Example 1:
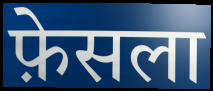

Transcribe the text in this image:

फ़ेसला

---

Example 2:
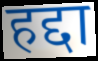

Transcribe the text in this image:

हद्दा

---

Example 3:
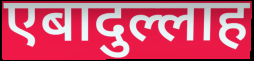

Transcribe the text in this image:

एबादुल्लाह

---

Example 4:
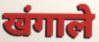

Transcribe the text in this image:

खंगाले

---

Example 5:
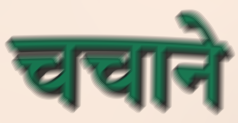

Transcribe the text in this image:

चचाने